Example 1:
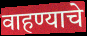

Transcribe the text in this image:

वाहण्याचे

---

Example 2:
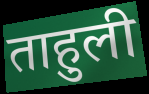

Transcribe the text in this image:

ताहुली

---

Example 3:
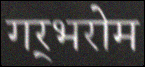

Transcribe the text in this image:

गर्भरोम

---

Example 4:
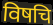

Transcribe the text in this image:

विषचि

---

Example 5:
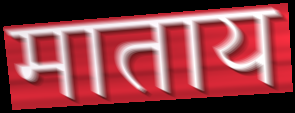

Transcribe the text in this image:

माताय